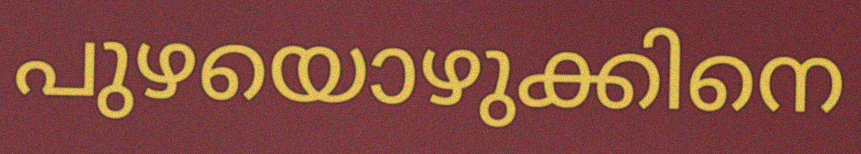
പുഴയൊഴുക്കിനെ